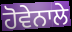
ਹੋਵੇਨਾਲੇ